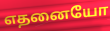
எதனையோ